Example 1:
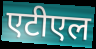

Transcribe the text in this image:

एटीएल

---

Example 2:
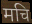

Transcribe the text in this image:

मचि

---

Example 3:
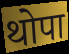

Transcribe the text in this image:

थोपा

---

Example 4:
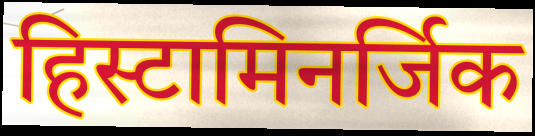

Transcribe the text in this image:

हिस्टामिनर्जिक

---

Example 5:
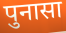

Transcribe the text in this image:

पुनासा